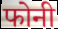
फोनी